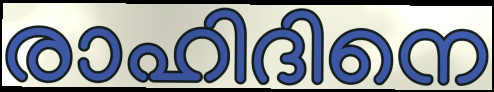
രാഹിദിനെ